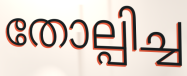
തോല്പിച്ച